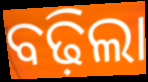
ବଢ଼ିଲା